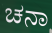
ಚನಾ